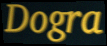
Dogra